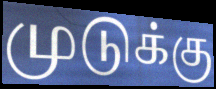
முடுக்கு